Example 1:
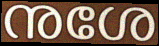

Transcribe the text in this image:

നുശേ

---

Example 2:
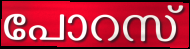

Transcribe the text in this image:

പോറസ്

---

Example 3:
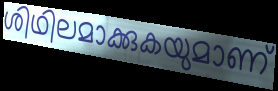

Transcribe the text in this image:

ശിഥിലമാക്കുകയുമാണ്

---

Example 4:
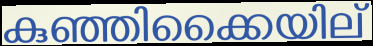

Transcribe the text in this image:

കുഞ്ഞിക്കൈയില്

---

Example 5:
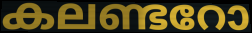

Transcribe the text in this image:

കലണ്ടറോ